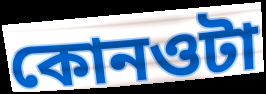
কোনওটা